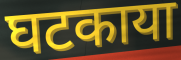
घटकाया